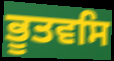
ਭੂਤਵਸਿ